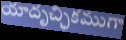
యాదృచ్ఛికముగా